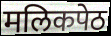
मलिकपेठ